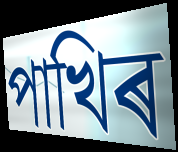
পাখিৰ